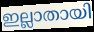
ഇല്ലാതായി